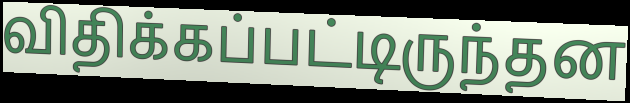
விதிக்கப்பட்டிருந்தன